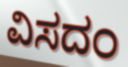
ವಿಸದಂ